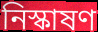
নিস্কাষণ